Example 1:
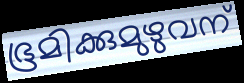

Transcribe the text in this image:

ഭൂമിക്കുമുഴുവന്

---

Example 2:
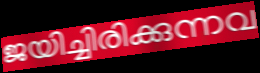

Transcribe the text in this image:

ജയിച്ചിരിക്കുന്നവ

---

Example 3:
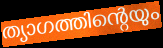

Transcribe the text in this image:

ത്യാഗത്തിന്റെയും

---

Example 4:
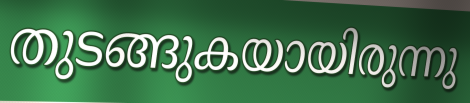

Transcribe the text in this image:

തുടങ്ങുകയായിരുന്നു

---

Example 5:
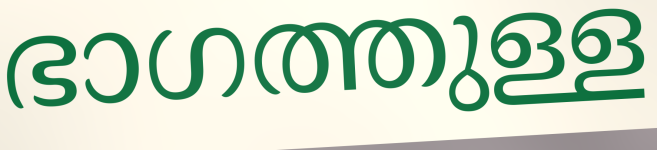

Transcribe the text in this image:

ഭാഗത്തുള്ള